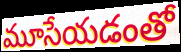
మూసేయడంతో